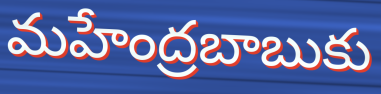
మహేంద్రబాబుకు